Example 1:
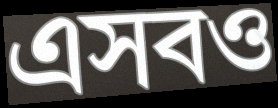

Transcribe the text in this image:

এসবও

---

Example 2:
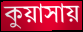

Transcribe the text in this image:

কুয়াসায়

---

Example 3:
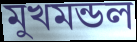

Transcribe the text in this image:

মুখমন্ডল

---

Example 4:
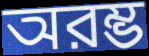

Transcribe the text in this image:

অরম্ভ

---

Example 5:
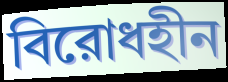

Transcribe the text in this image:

বিরোধহীন